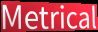
Metrical